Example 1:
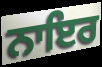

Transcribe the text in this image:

ਨਾਇਰ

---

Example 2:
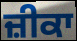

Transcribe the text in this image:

ਜ਼ੀਕਾ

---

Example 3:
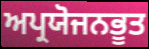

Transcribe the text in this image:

ਅਪ੍ਰਯੋਜਨਭੂਤ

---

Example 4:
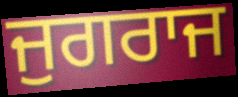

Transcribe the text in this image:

ਜੁਗਰਾਜ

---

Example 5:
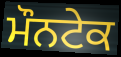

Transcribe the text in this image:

ਮੌਨਟੇਕ